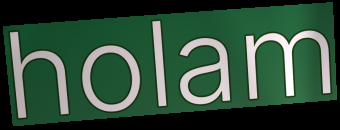
holam